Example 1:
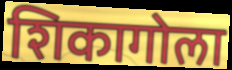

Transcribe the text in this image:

शिकागोला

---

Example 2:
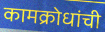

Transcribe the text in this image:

कामक्रोधांची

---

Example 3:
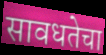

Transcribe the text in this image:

सावधतेचा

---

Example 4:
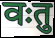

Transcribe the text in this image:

वःतु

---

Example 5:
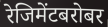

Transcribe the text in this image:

रेजिमेंटबरोबर